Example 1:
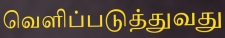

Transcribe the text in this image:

வெளிப்படுத்துவது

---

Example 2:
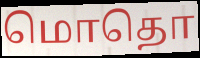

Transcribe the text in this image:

மொதொ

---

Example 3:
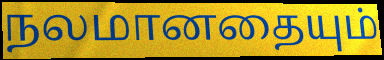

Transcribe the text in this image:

நலமானதையும்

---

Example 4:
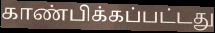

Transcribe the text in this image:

காண்பிக்கப்பட்டது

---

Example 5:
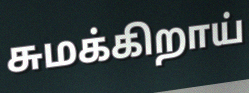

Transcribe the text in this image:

சுமக்கிறாய்